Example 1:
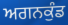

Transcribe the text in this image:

ਅਗਨਕੁੰਡ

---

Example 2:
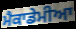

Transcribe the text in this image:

ਮੈਕਾਡੇਮੀਆ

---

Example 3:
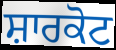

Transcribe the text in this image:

ਸ਼ਾਰਕੋਟ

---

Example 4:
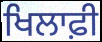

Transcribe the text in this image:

ਖਿਲਾਫ਼ੀ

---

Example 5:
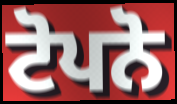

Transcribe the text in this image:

ਟੋਪਨੋ